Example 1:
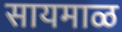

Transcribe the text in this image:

सायमाळ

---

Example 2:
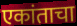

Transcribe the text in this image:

एकांताचा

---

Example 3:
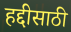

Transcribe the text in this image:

हद्दीसाठी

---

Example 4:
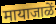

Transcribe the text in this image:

मायाजाळें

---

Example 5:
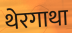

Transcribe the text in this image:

थेरगाथा